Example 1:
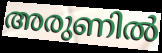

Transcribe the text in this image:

അരുണിൽ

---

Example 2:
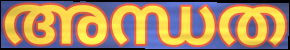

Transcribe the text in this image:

അന്ധത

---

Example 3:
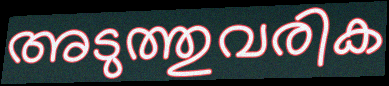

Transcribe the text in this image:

അടുത്തുവരിക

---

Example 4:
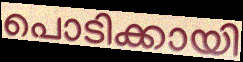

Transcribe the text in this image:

പൊടിക്കായി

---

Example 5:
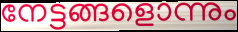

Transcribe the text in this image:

നേട്ടങ്ങളൊന്നും